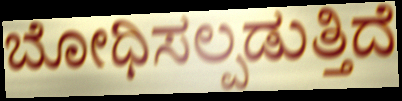
ಬೋಧಿಸಲ್ಪಡುತ್ತಿದೆ